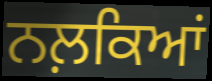
ਨਲ਼ਕਿਆਂ